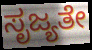
ಸೃಜ್ಯತೇ